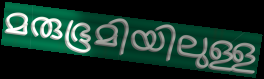
മരുഭൂമിയിലുള്ള